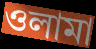
ওলামা